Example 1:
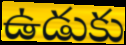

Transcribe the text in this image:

ఉడుకు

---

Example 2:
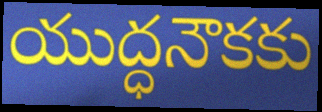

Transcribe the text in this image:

యుద్ధనౌకకు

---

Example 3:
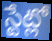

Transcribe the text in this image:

స్టేట్లో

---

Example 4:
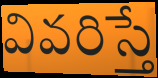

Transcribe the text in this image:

వివరిస్తే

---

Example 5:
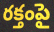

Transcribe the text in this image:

రక్తంపై